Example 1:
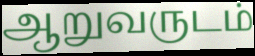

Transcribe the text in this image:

ஆறுவருடம்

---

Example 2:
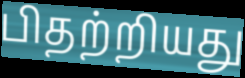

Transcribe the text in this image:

பிதற்றியது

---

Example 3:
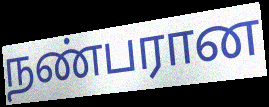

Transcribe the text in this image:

நண்பரான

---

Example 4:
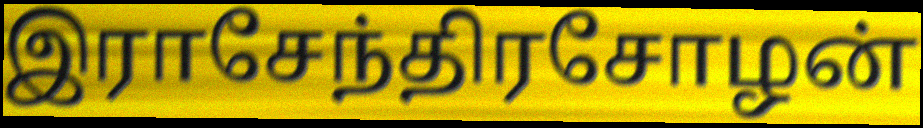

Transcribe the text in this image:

இராசேந்திரசோழன்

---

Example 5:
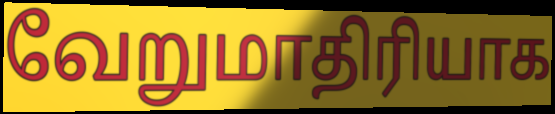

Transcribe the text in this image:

வேறுமாதிரியாக